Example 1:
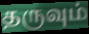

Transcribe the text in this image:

தருவும்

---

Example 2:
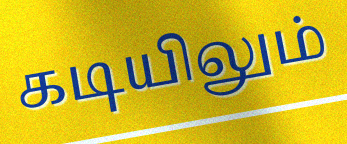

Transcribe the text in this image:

கடியிலும்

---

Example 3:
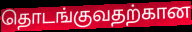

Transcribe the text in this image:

தொடங்குவதற்கான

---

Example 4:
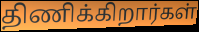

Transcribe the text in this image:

திணிக்கிறார்கள்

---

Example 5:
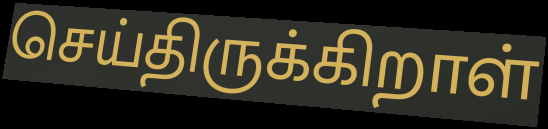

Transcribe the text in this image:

செய்திருக்கிறாள்